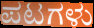
ಪಟಗಳು